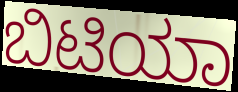
ಬಿಟಿಯಾ